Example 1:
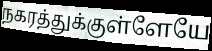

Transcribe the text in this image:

நகரத்துக்குள்ளேயே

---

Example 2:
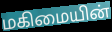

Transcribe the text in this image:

மகிமையின்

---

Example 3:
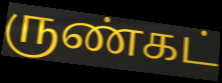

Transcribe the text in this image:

ருண்கட்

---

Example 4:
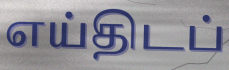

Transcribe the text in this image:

எய்திடப்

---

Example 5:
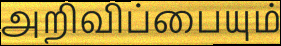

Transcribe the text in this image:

அறிவிப்பையும்